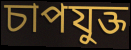
চাপযুক্ত